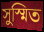
সুস্মিত